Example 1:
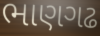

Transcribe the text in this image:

ભાણગઢ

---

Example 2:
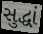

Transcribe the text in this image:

સુદ્ધાં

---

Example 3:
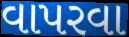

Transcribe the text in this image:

વાપરવા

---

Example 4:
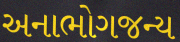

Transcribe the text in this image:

અનાભોગજન્ય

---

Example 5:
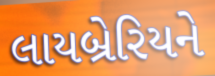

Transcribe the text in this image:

લાયબ્રેરિયને